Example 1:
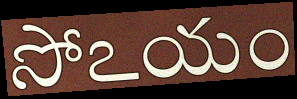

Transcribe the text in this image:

సోఽయం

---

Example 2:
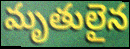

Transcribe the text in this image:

మృతులైన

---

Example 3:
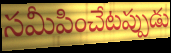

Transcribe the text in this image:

సమీపించేటప్పుడు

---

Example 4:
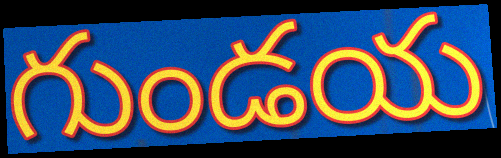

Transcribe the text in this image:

గుండయ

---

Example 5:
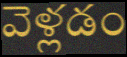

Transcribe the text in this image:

వెళ్లడం